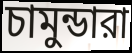
চামুন্ডারা